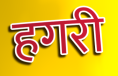
हगरी